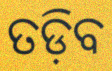
ତଡ଼ିବ